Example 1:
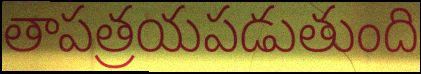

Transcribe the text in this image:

తాపత్రయపడుతుంది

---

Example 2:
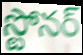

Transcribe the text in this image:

స్టోనర్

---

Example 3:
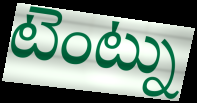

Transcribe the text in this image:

టెంట్ను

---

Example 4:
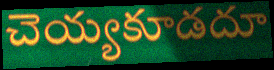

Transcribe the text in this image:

చెయ్యకూడదూ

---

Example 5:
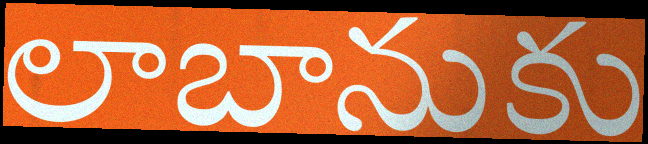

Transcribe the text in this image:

లాబానుకు